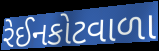
રેઈનકોટવાળા